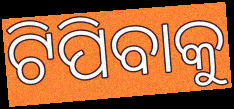
ଟିପିବାକୁ